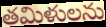
తమిళులను